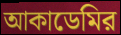
আকাডেমির